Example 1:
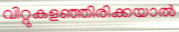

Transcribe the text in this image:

വിറ്റുകളഞ്ഞിരിക്കയാൽ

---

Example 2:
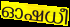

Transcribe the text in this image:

ഓഷധീ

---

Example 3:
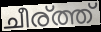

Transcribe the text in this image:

ചീര്ത്ത്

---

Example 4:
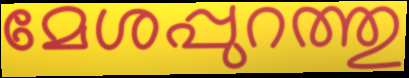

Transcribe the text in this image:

മേശപ്പുറത്തു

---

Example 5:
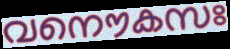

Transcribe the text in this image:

വനൌകസഃ